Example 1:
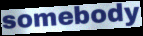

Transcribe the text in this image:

somebody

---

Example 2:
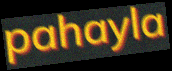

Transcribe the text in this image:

pahayla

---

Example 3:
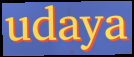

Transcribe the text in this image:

udaya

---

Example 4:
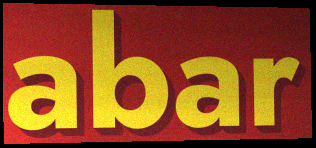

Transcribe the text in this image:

abar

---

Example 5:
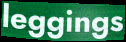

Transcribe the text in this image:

leggings